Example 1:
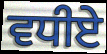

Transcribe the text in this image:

ਵਧੀਏ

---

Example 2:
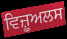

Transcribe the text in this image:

ਵਿਜ਼ੂਅਲਸ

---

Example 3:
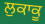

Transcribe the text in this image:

ਲੁਕਾਕੂ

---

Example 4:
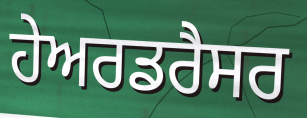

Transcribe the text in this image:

ਹੇਅਰਡਰੈਸਰ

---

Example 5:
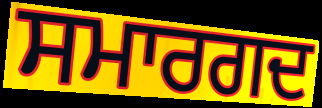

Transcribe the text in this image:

ਸਮਾਰਗਦ